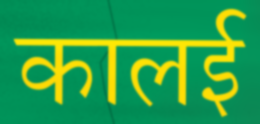
कालई